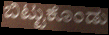
ಬಿಟ್ಟುಕೊಂಡು